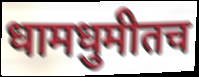
धामधुमीतच